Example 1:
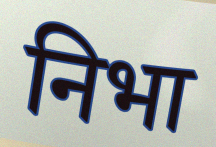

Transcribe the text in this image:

निभा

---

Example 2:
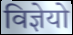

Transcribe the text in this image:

विज्ञेयो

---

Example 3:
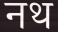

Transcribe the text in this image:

नथ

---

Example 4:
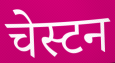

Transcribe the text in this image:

चेस्टन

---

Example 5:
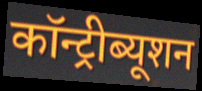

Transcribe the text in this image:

कॉन्ट्रीब्यूशन